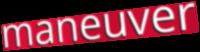
maneuver